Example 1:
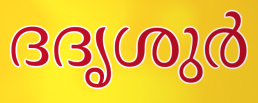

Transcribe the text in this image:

ദദൃശുർ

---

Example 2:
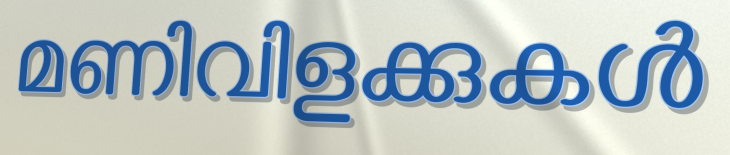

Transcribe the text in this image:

മണിവിളക്കുകൾ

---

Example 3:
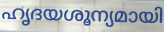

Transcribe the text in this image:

ഹൃദയശൂന്യമായി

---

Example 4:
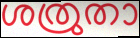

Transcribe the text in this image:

ശത്രുതാ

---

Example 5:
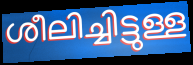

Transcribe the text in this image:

ശീലിച്ചിട്ടുള്ള